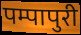
पम्पापुरी